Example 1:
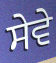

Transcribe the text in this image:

ਸੇਵੇ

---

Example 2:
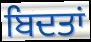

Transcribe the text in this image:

ਬਿਦਤਾਂ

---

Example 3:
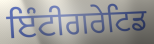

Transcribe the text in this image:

ਇੰਟੀਗਰੇਟਿਡ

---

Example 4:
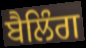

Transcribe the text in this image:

ਬੈਲਿੰਗ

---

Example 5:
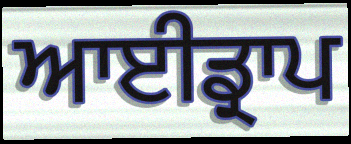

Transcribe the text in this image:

ਆਈਡ੍ਰਾਪ